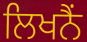
ਲਿਖਨੈਂ